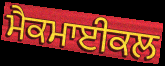
ਮੈਕਮਾਈਕਲ